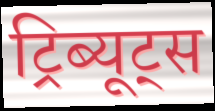
ट्रिब्यूट्स